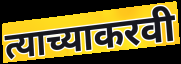
त्याच्याकरवी